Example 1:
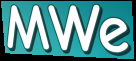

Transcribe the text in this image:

MWe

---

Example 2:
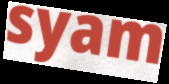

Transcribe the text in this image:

syam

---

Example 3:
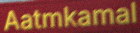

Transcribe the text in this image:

Aatmkamal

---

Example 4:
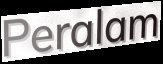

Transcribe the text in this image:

Peralam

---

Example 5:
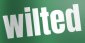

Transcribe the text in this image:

wilted